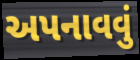
અપનાવવું